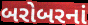
બરોબરનાં